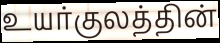
உயர்குலத்தின்